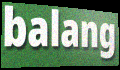
balang